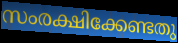
സംരക്ഷിക്കേണ്ടതു